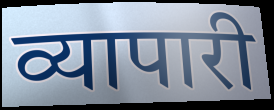
व्यापारी